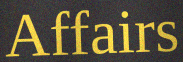
Affairs